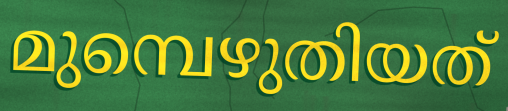
മുമ്പെഴുതിയത്